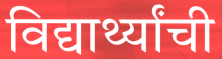
विद्यार्थ्यांची